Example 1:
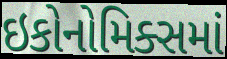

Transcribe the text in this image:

ઇકોનોમિક્સમાં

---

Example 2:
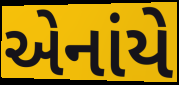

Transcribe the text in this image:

એનાંયે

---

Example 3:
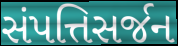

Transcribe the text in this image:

સંપત્તિસર્જન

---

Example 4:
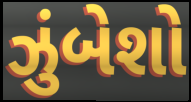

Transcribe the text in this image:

ઝુંબેશો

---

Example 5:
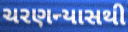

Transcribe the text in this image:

ચરણન્યાસથી